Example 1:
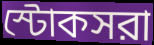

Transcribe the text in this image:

স্টোকসরা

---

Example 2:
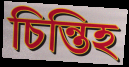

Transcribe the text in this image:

চিন্তিহ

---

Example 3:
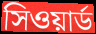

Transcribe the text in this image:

সিওয়ার্ড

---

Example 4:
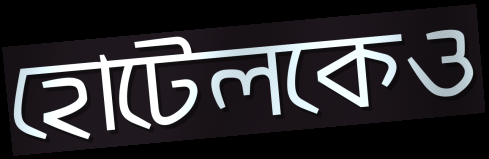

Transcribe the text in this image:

হোটেলকেও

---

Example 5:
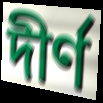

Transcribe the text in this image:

দীর্ণ